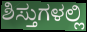
ಶಿಸ್ತುಗಳಲ್ಲಿ